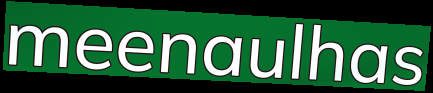
meenaulhas